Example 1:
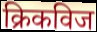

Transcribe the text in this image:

क्रिकविज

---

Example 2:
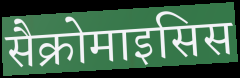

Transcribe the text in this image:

सैक्रोमाइसिस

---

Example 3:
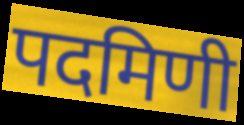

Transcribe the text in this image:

पदमिणी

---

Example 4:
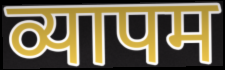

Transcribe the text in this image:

व्यापम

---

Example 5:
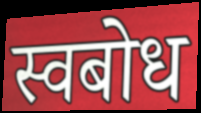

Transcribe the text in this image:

स्वबोध